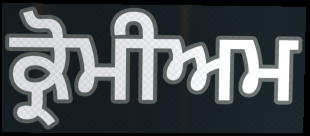
ਕ੍ਰੋਮੀਅਮ